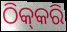
ଠିକ୍‍କରି